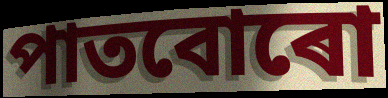
পাতবোৰো